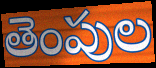
తెంపుల